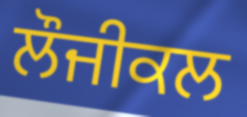
ਲੌਜੀਕਲ